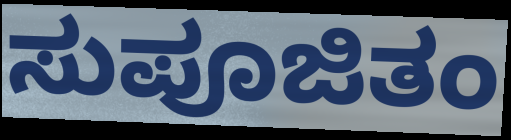
ಸುಪೂಜಿತಂ